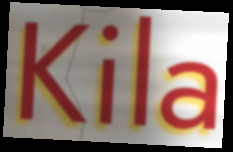
Kila